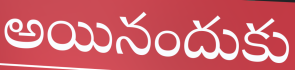
అయినందుకు